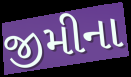
જીમીના